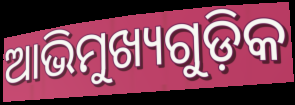
ଆଭିମୁଖ୍ୟଗୁଡ଼ିକ